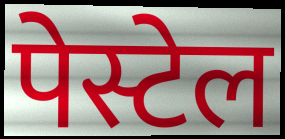
पेस्टेल